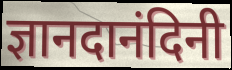
ज्ञानदानंदिनी